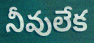
నీవులేక